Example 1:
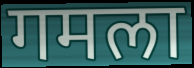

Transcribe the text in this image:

गमला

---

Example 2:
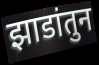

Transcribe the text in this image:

झाडांतुन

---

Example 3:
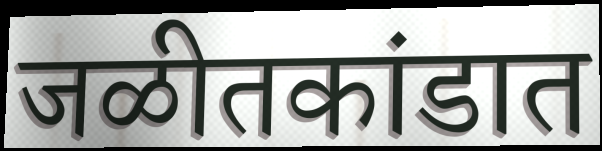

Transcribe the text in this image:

जळीतकांडात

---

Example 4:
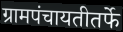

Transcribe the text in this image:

ग्रामपंचायतीतर्फे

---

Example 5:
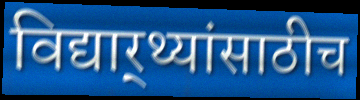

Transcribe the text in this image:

विद्यार्थ्यांसाठीच